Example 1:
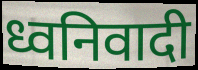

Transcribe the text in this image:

ध्वनिवादी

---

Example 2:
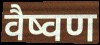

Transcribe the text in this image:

वैष्वण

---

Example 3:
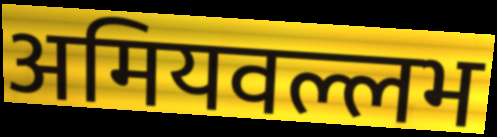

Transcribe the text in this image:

अमियवल्लभ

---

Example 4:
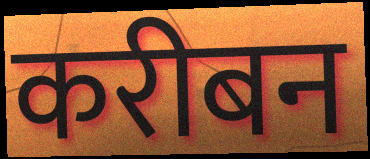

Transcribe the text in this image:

करीबन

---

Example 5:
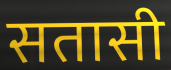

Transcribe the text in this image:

सतासी